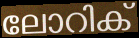
ലോറിക്